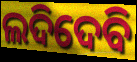
ଲଦିଦେବି